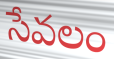
సేవలం